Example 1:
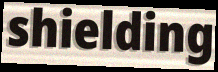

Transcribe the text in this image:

shielding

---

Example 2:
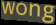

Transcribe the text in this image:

wong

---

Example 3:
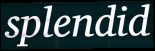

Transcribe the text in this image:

splendid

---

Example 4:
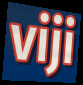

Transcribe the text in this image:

viji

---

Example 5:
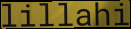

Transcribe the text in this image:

lillahi